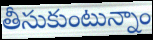
తీసుకుంటున్నాం